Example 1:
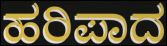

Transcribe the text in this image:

ಹರಿಪಾದ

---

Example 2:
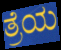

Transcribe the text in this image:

ತ್ರೆಯ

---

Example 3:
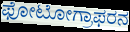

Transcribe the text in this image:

ಫೋಟೋಗ್ರಾಫರನ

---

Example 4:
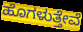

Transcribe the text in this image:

ಹೊಗಳುತ್ತೇವೆ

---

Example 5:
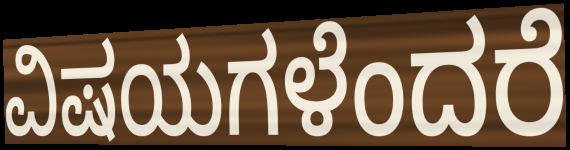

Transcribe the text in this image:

ವಿಷಯಗಳೆಂದರೆ